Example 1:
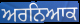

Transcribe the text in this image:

ਅਰਨਿਆਕ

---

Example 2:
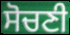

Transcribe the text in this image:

ਸੋਚਣੀ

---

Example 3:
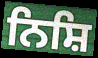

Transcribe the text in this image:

ਨਿਸ਼ਿ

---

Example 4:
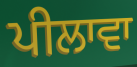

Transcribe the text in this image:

ਪੀਲਾਵਾ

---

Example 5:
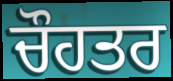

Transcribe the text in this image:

ਚੌਹਤਰ